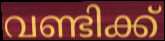
വണ്ടിക്ക്